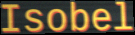
Isobel